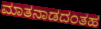
ಮಾತನಾಡದಂತಹ